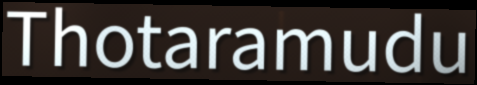
Thotaramudu